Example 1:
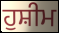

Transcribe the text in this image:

ਹੁਸ਼ੀਮ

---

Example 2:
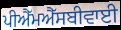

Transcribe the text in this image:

ਪੀਐੱਮਐੱਸਬੀਵਾਈ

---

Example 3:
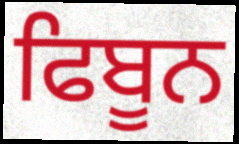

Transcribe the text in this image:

ਫਿਬੂਨ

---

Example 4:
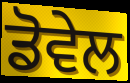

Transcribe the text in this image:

ਡੋਵੇਲ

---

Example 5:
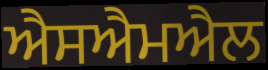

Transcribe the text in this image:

ਐਸਐਮਐਲ